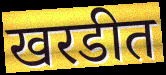
खरडीत